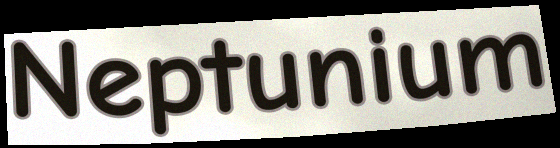
Neptunium